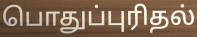
பொதுப்புரிதல்